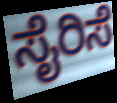
ಸೈರಿಸೆ